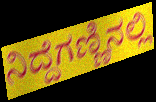
ನಿದ್ದೆಗಣ್ಣಿನಲ್ಲಿ